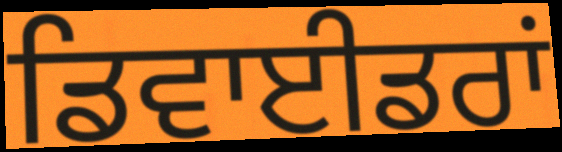
ਡਿਵਾਈਡਰਾਂ